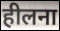
हीलना